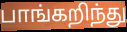
பாங்கறிந்து